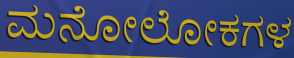
ಮನೋಲೋಕಗಳ